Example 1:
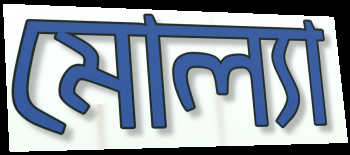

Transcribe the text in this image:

মোল্যা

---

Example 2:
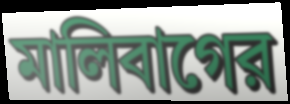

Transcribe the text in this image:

মালিবাগের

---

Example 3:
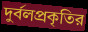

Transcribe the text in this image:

দুর্বলপ্রকৃতির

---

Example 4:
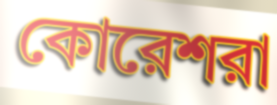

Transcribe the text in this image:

কোরেশরা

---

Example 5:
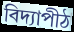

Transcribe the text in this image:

বিদ্যাপীঠ